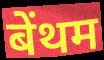
बेंथम